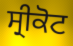
ਸ੍ਰੀਕੋਟ